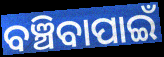
ବଞ୍ଚିବାପାଇଁ